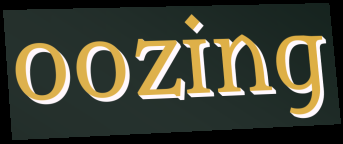
oozing